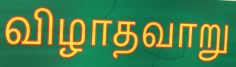
விழாதவாறு